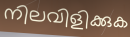
നിലവിളിക്കുക